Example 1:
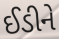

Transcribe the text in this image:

ઈડીને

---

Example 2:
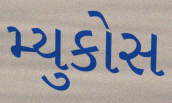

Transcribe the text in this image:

મ્યુકોસ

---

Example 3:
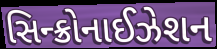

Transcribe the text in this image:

સિન્ક્રોનાઈઝેશન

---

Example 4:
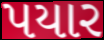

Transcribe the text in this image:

પયાર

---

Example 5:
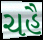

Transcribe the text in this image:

ચહૈ